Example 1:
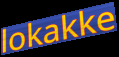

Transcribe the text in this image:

lokakke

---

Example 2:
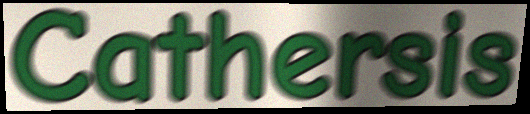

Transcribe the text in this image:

Cathersis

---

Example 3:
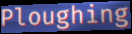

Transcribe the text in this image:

Ploughing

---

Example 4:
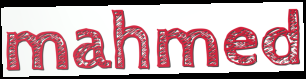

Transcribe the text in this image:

mahmed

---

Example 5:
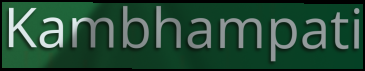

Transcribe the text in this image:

Kambhampati